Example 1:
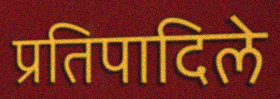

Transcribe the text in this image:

प्रतिपादिले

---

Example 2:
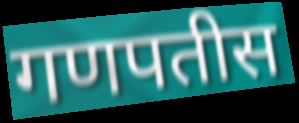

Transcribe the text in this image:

गणपतीस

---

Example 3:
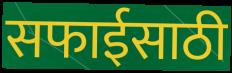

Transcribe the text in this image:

सफाईसाठी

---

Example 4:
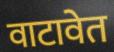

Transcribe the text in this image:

वाटावेत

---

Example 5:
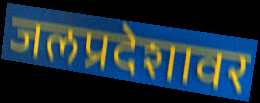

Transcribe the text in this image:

जलप्रदेशावर